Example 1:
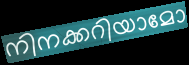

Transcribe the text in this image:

നിനക്കറിയാമോ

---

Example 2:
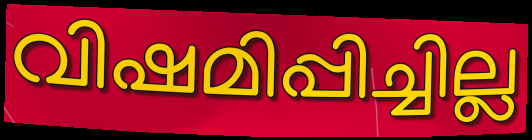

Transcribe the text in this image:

വിഷമിപ്പിച്ചില്ല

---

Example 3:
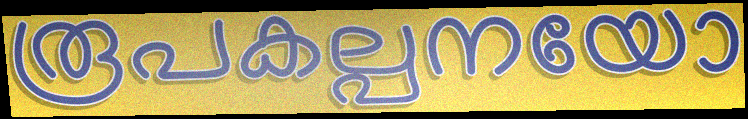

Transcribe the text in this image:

രൂപകല്പനയോ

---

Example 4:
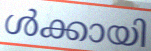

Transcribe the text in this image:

ൾക്കായി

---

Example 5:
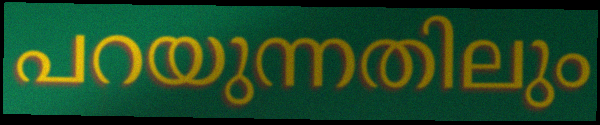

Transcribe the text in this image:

പറയുന്നതിലും